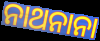
ନାଥନାନା